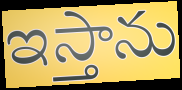
ఇస్తాను